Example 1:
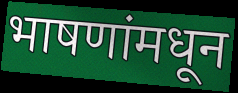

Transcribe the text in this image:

भाषणांमधून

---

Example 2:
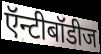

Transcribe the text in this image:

ऍन्टीबॉडीज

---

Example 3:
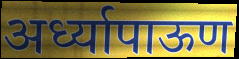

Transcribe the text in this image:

अर्ध्यापाऊण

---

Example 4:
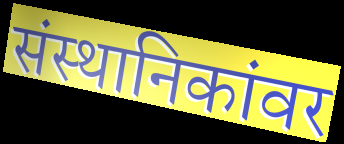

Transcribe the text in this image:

संस्थानिकांवर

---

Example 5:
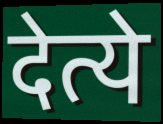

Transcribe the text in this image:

देत्ये